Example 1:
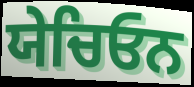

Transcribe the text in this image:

ਯੇਚਿਓਨ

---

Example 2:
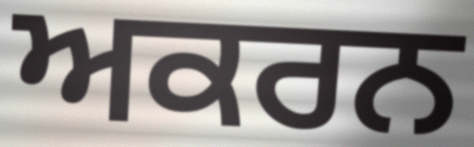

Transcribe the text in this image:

ਅਕਰਨ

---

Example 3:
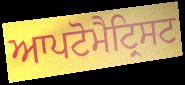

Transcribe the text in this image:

ਆਪਟੋਮੈਟ੍ਰਿਸਟ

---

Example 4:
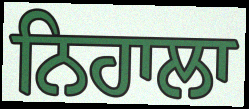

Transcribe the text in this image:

ਨਿਹਾਲਾ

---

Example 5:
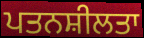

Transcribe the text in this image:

ਪਤਨਸ਼ੀਲਤਾ